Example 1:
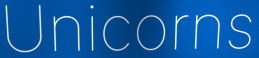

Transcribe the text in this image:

Unicorns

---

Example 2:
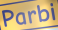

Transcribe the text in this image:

Parbi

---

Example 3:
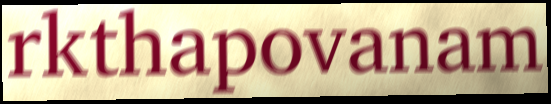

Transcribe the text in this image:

rkthapovanam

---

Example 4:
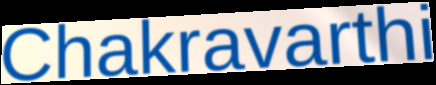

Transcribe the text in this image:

Chakravarthi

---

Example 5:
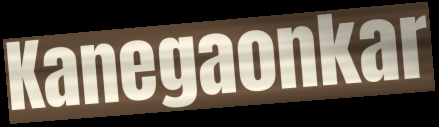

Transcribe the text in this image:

Kanegaonkar